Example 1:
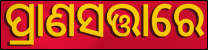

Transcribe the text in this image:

ପ୍ରାଣସତ୍ତାରେ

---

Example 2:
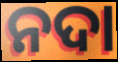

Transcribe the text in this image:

ନଦା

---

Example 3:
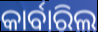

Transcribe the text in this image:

କାର୍ବାରିଲ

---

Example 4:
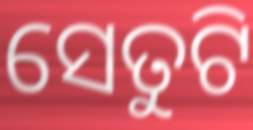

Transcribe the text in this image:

ସେତୁଟି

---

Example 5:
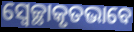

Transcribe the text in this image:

ସ୍ୱେଚ୍ଛାକୃତଭାବେ